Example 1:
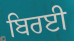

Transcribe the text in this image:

ਬਿਰਈ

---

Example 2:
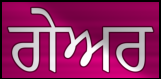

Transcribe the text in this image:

ਗੇਅਰ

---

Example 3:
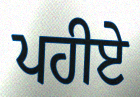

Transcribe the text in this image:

ਪਹੀਏ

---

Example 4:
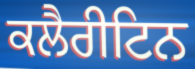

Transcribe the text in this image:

ਕਲੈਰੀਟਿਨ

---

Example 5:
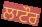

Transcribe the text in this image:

ਲਾਟੌਰ